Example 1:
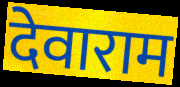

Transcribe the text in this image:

देवाराम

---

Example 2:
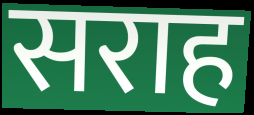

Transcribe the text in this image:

सराह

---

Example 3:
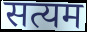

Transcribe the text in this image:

सत्यम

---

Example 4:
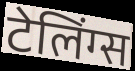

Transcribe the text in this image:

टेलिंग्स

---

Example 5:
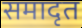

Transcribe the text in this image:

समादृत